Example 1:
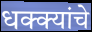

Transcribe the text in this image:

धक्क्यांचे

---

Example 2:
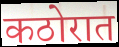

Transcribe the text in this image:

कठोरात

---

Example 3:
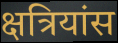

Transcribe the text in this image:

क्षत्रियांस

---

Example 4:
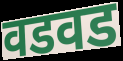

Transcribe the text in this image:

वडवड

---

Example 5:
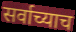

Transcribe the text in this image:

सर्वाच्याच